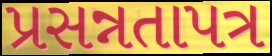
પ્રસન્નતાપત્ર